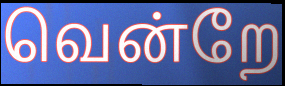
வென்றே